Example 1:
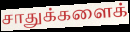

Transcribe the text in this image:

சாதுக்களைக்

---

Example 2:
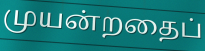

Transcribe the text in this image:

முயன்றதைப்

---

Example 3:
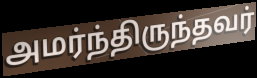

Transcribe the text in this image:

அமர்ந்திருந்தவர்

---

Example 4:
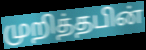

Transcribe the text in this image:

முறித்தபின்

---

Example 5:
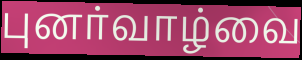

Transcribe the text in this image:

புனர்வாழ்வை